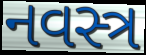
નવસ્ત્ર